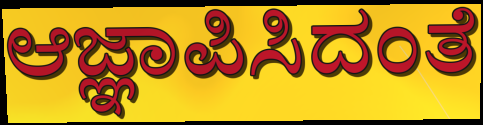
ಆಜ್ಞಾಪಿಸಿದಂತೆ